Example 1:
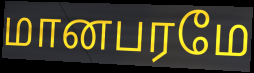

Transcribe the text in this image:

மானபரமே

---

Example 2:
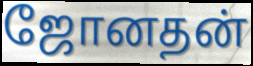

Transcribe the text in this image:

ஜோனதன்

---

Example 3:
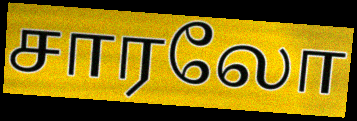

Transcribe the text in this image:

சாரலோ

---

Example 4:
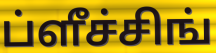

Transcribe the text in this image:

ப்ளீச்சிங்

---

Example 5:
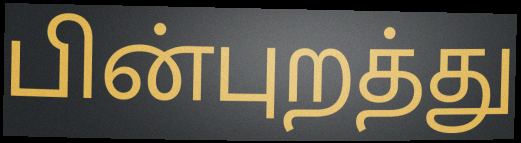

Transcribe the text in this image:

பின்புறத்து